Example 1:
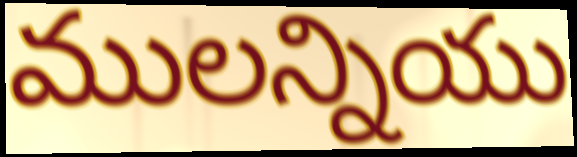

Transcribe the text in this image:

ములన్నియు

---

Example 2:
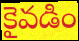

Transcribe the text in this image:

కైవడిం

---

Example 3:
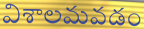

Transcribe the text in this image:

విశాలమవడం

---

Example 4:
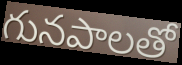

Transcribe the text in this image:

గునపాలతో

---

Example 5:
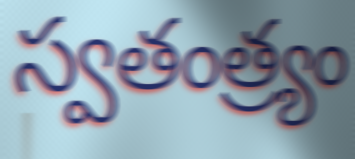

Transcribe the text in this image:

స్వతంత్ర్యం